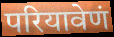
परियावेणं